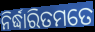
ନିର୍ଦ୍ଧାରିତମତେ